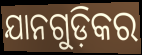
ଯାନଗୁଡ଼ିକର